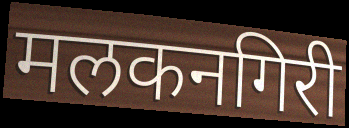
मलकनगिरी